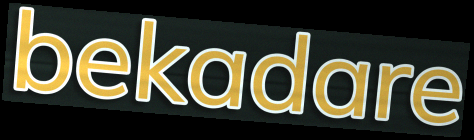
bekadare